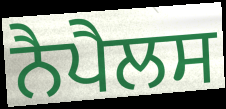
ਨੈਪੈਲਸ